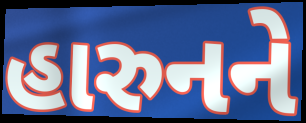
હારુનને